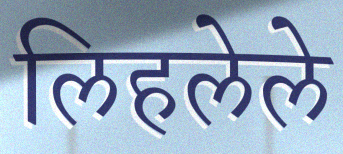
लिहलेले